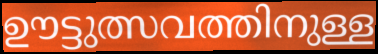
ഊട്ടുത്സവത്തിനുള്ള